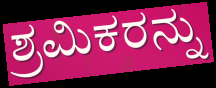
ಶ್ರಮಿಕರನ್ನು